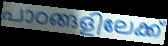
പാഠങ്ങളിലേക്ക്